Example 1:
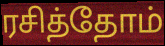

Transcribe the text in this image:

ரசித்தோம்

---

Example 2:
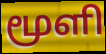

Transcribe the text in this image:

மூளி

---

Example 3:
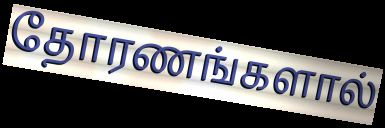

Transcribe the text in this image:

தோரணங்களால்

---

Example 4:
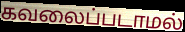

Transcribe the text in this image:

கவலைப்படாமல்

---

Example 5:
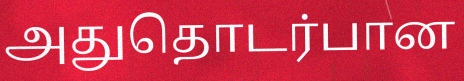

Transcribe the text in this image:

அதுதொடர்பான